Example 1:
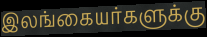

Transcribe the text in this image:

இலங்கையர்களுக்கு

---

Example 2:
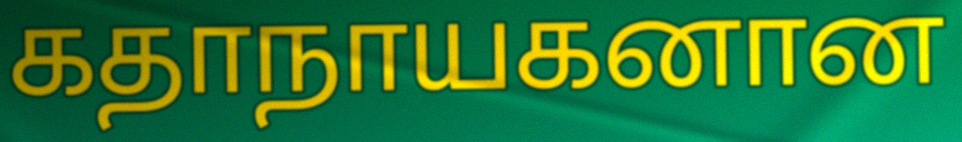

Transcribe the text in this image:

கதாநாயகனான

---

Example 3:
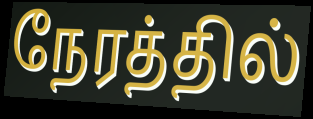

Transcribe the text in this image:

நேரத்தில்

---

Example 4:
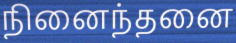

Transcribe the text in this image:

நினைந்தனை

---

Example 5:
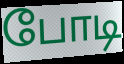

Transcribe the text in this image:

போடி